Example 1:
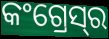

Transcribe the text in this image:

କଂଗ୍ରେସ୍‌ର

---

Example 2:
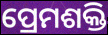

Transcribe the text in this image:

ପ୍ରେମଶକ୍ତି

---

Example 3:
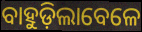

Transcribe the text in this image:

ବାହୁଡ଼ିଲାବେଳେ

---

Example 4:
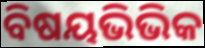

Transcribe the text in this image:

ବିଷୟଭିଭିକ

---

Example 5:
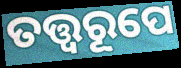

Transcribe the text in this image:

ତତ୍ତ୍ୱରୂପେ